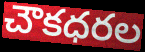
చౌకధరల